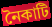
নৈকাটি